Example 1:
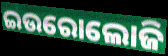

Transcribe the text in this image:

ଇଉରୋଲୋଜି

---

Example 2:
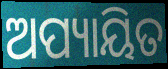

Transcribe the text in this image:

ଅପ୍ୟାୟିତ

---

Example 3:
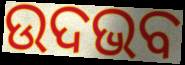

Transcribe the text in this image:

ଉଦଭବ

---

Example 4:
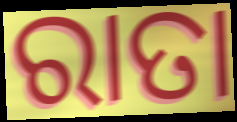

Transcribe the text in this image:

ରାତା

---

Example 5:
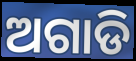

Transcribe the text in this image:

ଅଗାଡି